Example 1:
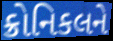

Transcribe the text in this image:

ક્રોનિકલને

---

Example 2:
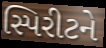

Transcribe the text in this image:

સ્પિરીટને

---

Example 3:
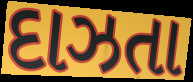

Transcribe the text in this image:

દાઝતા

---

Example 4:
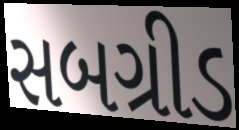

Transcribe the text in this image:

સબગ્રીડ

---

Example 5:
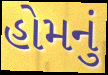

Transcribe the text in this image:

હોમનું